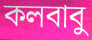
কলবাবু